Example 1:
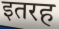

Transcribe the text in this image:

इतरह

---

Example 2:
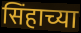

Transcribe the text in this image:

सिंहाच्या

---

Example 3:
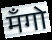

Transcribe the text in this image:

मँगो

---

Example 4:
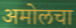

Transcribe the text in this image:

अमोलचा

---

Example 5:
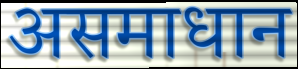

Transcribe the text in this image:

असमाधान